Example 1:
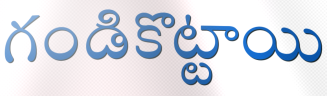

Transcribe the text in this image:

గండికొట్టాయి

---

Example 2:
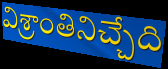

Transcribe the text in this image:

విశ్రాంతినిచ్చేది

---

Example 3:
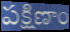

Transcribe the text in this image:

పక్షిణాం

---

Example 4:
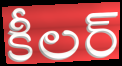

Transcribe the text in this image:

కీలర్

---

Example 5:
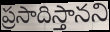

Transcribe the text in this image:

ప్రసాదిస్తానని